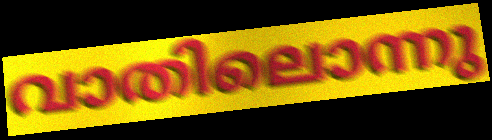
വാതിലൊന്നു